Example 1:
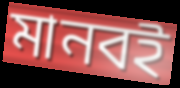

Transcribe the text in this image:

মানবই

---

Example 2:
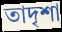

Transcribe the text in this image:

তাদৃশা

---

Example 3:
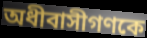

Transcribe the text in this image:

অধীবাসীগণকে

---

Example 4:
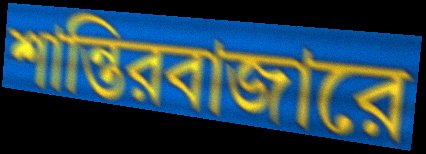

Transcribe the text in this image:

শান্তিরবাজারে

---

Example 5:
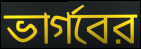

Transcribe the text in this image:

ভার্গবের